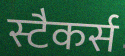
स्टैकर्स